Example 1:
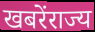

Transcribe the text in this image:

खबरेंराज्य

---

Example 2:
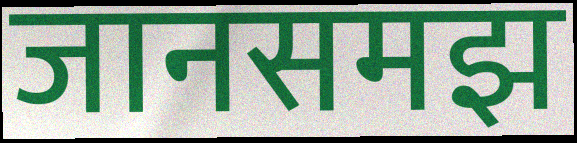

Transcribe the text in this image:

जानसमझ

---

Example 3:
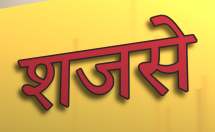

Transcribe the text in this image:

शजसे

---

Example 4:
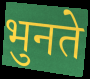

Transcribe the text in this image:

भुनते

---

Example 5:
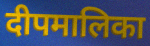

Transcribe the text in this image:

दीपमालिका